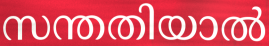
സന്തതിയാൽ